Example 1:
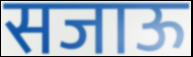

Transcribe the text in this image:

सजाऊ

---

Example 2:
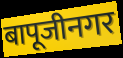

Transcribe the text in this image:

बापूजीनगर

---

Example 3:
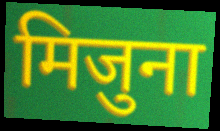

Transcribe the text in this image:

मिजुना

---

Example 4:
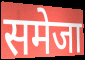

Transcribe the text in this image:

समेजा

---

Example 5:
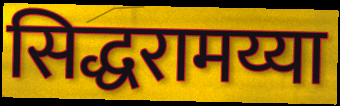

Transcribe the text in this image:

सिद्धरामय्या